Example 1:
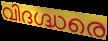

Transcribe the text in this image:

വിദഗ്ദ്ധരെ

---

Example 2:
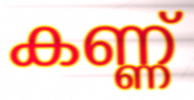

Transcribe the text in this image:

കണ്ണ്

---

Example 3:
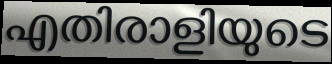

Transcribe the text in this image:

എതിരാളിയുടെ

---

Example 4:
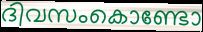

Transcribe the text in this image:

ദിവസംകൊണ്ടോ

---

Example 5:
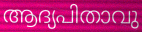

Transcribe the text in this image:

ആദ്യപിതാവു